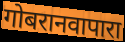
गोबरानवापारा